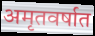
अमृतवर्षात